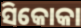
ସିକୋକା